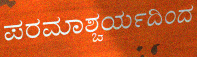
ಪರಮಾಶ್ಚರ್ಯದಿಂದ